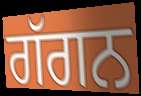
ਗੱਗਨ